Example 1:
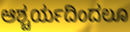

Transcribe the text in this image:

ಆಶ್ಚರ್ಯದಿಂದಲೂ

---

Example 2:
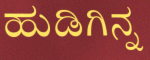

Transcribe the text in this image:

ಹುಡಿಗಿನ್ನ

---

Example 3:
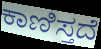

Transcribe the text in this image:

ಕಾಣಿಸ್ತದೆ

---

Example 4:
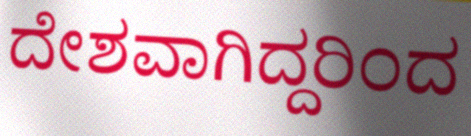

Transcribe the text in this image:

ದೇಶವಾಗಿದ್ದರಿಂದ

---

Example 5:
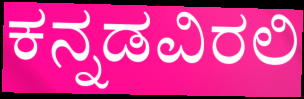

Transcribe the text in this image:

ಕನ್ನಡವಿರಲಿ